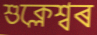
শুক্লেশ্বৰ